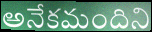
అనేకమందిని